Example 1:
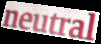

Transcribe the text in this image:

neutral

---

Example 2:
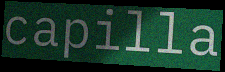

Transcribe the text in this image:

capilla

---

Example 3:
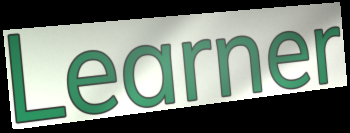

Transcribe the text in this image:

Learner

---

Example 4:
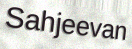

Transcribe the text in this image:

Sahjeevan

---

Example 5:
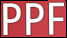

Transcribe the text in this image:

PPF